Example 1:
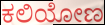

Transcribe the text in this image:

ಕಲಿಯೋಣ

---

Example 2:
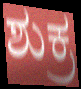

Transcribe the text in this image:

ಶುಕ್ರ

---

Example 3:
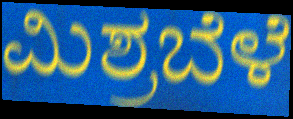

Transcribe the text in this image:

ಮಿಶ್ರಬೆಳೆ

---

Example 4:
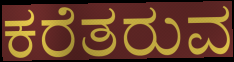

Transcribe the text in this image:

ಕರೆತರುವ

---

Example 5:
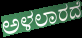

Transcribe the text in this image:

ಅಳಲಾರದೆ